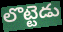
లొట్టెడు